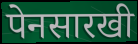
पेनसारखी